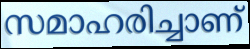
സമാഹരിച്ചാണ്